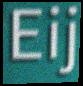
Eij